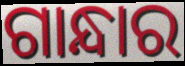
ଗାନ୍ଧାର